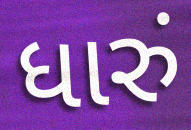
ધારું